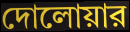
দোলোয়ার